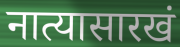
नात्यासारखं